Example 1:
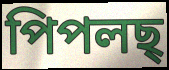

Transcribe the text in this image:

পিপলছ্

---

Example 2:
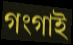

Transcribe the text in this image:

গংগাই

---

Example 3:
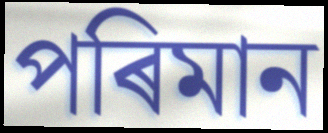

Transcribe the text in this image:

পৰিমান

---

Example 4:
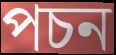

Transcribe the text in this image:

পচন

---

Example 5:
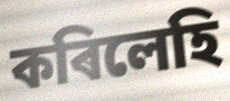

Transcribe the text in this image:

কৰিলেহি